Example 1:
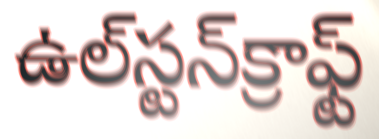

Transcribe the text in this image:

ఉల్‌స్టన్‌క్రాఫ్ట్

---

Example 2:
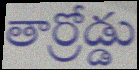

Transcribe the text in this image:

తార్రోడ్డు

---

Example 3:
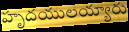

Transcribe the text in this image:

హృదయులయ్యారు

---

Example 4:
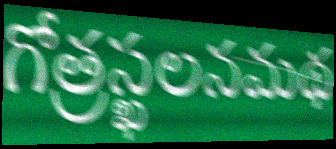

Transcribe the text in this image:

గోత్రస్ఖలనమథ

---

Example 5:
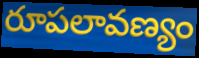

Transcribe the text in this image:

రూపలావణ్యం